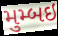
મુમ્બઇ